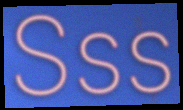
Sss